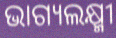
ଭାଗ୍ୟଲକ୍ଷ୍ମୀ